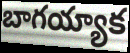
బాగయ్యాక